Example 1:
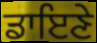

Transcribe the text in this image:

ਡਾਇਣੇ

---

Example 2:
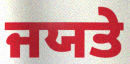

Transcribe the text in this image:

ਜਯਤੇ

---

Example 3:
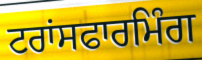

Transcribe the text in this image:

ਟਰਾਂਸਫਾਰਮਿੰਗ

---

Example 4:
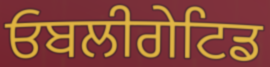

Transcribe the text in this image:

ਓਬਲੀਗੇਟਿਡ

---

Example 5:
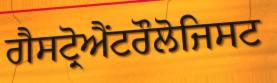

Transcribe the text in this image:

ਗੈਸਟ੍ਰੋਐਂਟਰੌਲੋਜਿਸਟ